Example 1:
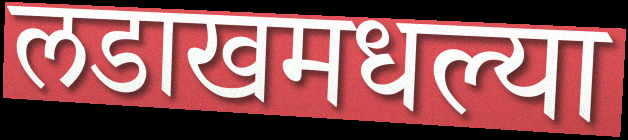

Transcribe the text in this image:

लडाखमधल्या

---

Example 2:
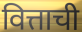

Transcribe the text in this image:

वित्ताची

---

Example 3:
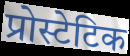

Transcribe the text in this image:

प्रोस्टेटिक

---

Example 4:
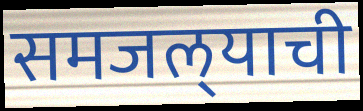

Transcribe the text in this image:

समजल्याची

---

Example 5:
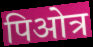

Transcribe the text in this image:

पिओत्र